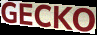
GECKO